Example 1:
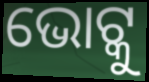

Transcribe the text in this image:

ଭୋଟ୍କୁ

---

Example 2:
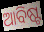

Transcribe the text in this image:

ଆବିଷ୍ଟ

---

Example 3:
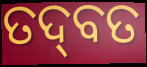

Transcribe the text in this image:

ତଦ୍‌ବତ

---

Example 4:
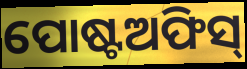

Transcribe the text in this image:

ପୋଷ୍ଟଅଫିସ୍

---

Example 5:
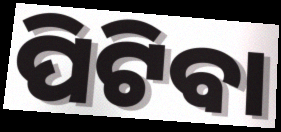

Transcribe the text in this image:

ପିଟିବା